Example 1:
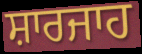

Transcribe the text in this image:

ਸ਼ਾਰਜਾਹ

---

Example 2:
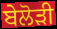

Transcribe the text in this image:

ਬੇਲੋੜੀ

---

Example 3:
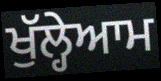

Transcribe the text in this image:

ਖੁੱਲ੍ਹੇਆਮ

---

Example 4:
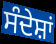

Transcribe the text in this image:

ਸੰਦੇਸ਼ਾਂ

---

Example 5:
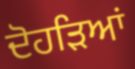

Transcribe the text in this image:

ਦੋਹੜਿਆਂ